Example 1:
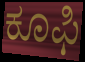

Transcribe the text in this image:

ಕೂಫಿ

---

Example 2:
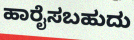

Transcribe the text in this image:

ಹಾರೈಸಬಹುದು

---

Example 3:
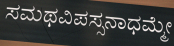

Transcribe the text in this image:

ಸಮಥವಿಪಸ್ಸನಾಧಮ್ಮೇ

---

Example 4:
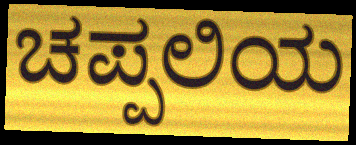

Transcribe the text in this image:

ಚಪ್ಪಲಿಯ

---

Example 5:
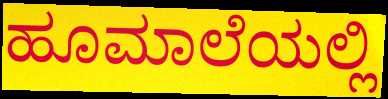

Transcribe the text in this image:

ಹೂಮಾಲೆಯಲ್ಲಿ